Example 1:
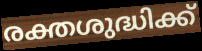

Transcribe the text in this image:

രക്തശുദ്ധിക്ക്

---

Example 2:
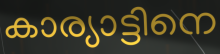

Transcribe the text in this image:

കാര്യാട്ടിനെ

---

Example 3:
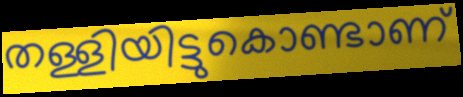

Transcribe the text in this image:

തള്ളിയിട്ടുകൊണ്ടാണ്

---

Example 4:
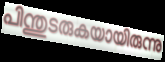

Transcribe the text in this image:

പിന്തുടരുകയായിരുന്നു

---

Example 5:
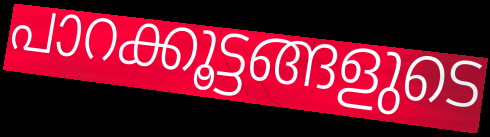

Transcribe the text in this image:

പാറക്കൂട്ടങ്ങളുടെ